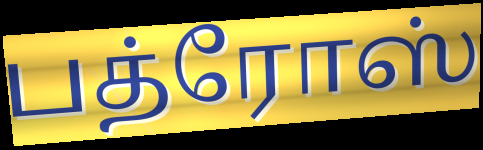
பத்ரோஸ்